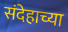
संदेहाच्या